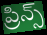
ప్రిన్స్